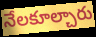
నేలకూల్చారు